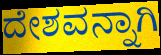
ದೇಶವನ್ನಾಗಿ